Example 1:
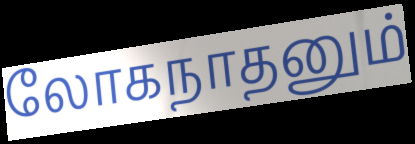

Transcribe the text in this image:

லோகநாதனும்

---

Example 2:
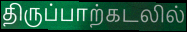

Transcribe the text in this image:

திருப்பாற்கடலில்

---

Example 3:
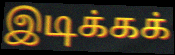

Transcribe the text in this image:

இடிக்கக்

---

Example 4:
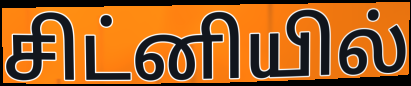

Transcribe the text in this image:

சிட்னியில்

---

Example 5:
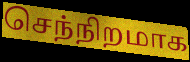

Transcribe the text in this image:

செந்நிறமாக